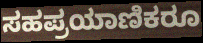
ಸಹಪ್ರಯಾಣಿಕರೂ